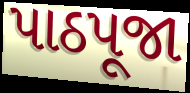
પાઠપૂજા